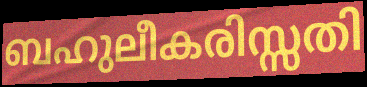
ബഹുലീകരിസ്സതി